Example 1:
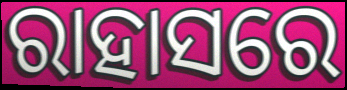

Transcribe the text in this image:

ରାହାସରେ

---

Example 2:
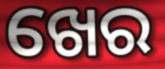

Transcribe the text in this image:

ଖେର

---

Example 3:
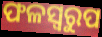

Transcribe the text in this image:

ଫଳସ୍ୱରୁପ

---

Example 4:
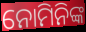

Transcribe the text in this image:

ନୋମିନିଙ୍କ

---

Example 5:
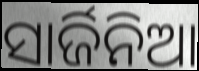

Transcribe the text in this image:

ସାର୍ଜିନିଆ